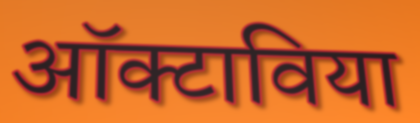
ऑक्टाविया